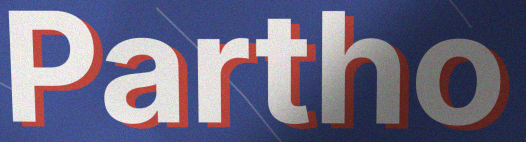
Partho